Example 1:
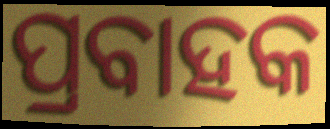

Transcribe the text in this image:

ପ୍ରବାହକ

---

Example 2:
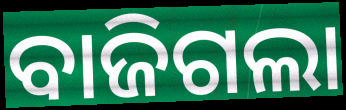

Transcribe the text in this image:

ବାଜିଗଲା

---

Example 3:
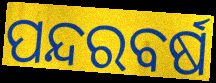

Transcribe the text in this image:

ପନ୍ଦରବର୍ଷ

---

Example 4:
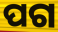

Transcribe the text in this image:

ପଗ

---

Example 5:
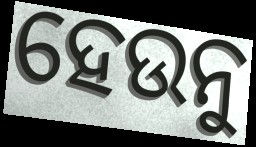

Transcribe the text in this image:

ହେଉନୁ